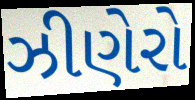
ઝીણેરો